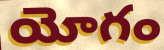
యోగం